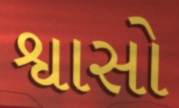
શ્વાસો